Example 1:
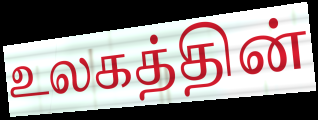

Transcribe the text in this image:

உலகத்தின்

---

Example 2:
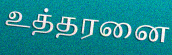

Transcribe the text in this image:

உத்தரனை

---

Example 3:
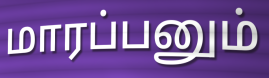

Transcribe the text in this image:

மாரப்பனும்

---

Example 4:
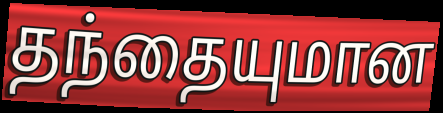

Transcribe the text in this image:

தந்தையுமான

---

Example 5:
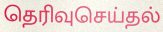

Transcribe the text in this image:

தெரிவுசெய்தல்